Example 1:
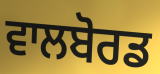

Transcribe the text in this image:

ਵਾਲਬੋਰਡ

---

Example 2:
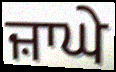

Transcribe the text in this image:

ਜ਼ਾਘੇ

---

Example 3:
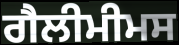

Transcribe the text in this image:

ਗੈਲੀਮੀਮਸ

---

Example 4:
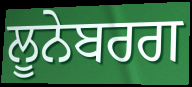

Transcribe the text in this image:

ਲੂਨੇਬਰਗ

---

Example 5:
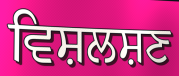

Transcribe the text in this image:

ਵਿਸ਼ਲਸ਼ਣ